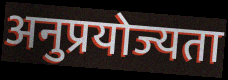
अनुप्रयोज्यता